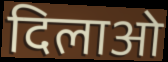
दिलाओ